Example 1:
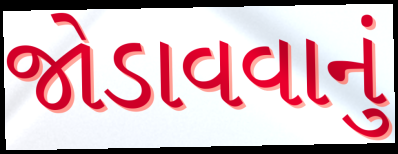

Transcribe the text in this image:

જોડાવવાનું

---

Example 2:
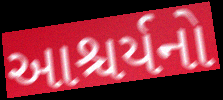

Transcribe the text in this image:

આશ્ચર્યનો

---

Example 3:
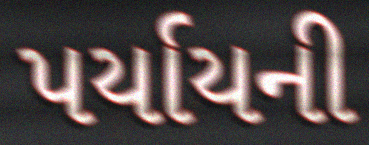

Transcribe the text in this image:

પર્યાયની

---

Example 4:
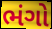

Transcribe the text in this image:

ભંગો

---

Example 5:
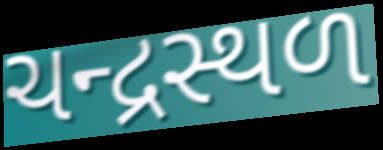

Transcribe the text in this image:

ચન્દ્રસ્થળ